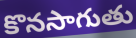
కొనసాగుతు